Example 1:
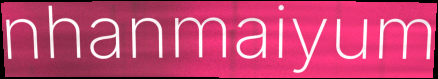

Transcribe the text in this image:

nhanmaiyum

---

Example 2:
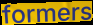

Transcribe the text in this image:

formers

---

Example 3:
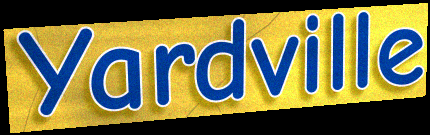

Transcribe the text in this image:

Yardville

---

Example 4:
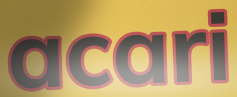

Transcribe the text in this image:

acari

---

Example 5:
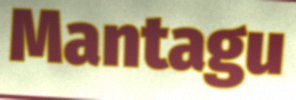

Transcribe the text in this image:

Mantagu